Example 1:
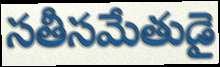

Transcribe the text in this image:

సతీసమేతుడై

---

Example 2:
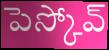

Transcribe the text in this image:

పెస్కోవ్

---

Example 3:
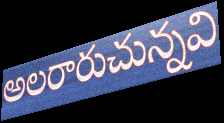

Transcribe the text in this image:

అలరారుచున్నవి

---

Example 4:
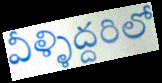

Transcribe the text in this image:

వీళ్ళిద్దరిలో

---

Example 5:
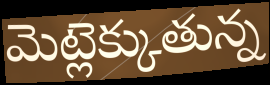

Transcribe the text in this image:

మెట్లెక్కుతున్న